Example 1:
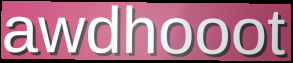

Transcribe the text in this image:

awdhooot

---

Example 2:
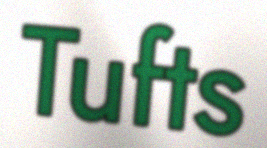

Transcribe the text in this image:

Tufts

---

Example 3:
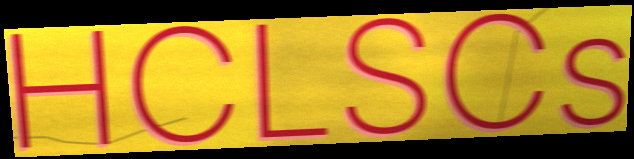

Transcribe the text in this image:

HCLSCs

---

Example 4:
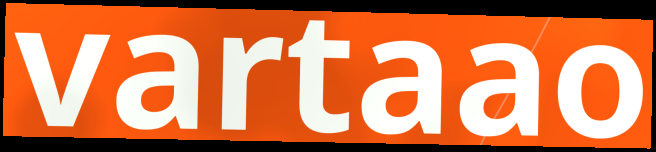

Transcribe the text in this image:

vartaao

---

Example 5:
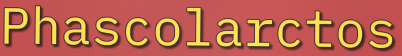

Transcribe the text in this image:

Phascolarctos